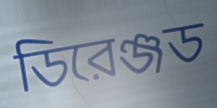
ডিরেঞ্জড